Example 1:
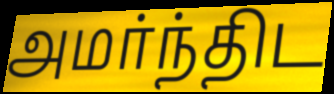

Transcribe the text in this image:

அமர்ந்திட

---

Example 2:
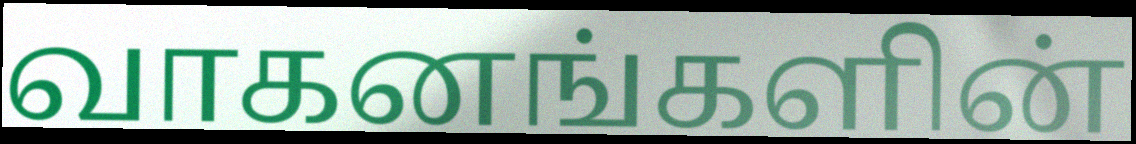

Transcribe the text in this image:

வாகனங்களின்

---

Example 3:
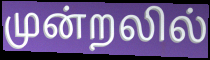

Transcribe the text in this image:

முன்றலில்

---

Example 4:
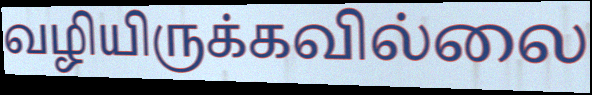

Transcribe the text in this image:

வழியிருக்கவில்லை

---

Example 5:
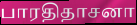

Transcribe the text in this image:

பாரதிதாசனா